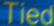
Tied